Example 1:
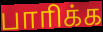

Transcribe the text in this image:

பாரிக்க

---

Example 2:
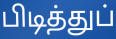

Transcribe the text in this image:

பிடித்துப்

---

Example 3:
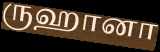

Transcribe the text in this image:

ருஹானா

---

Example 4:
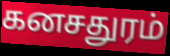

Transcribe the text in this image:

கனசதுரம்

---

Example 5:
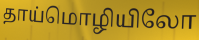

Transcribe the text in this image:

தாய்மொழியிலோ